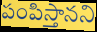
పంపిస్తానని